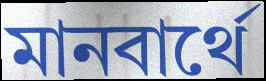
মানবার্থে